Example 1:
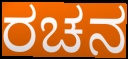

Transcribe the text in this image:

ರಚನ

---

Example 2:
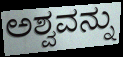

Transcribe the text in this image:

ಅಶ್ವವನ್ನು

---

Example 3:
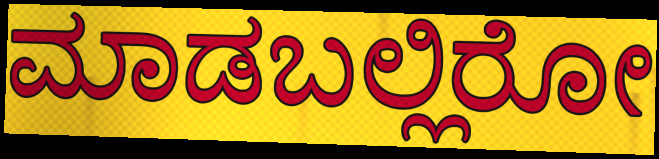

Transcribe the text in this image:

ಮಾಡಬಲ್ಲಿರೋ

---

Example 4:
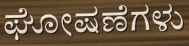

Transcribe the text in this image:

ಘೋಷಣೆಗಳು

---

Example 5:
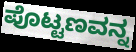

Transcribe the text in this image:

ಪೊಟ್ಟಣವನ್ನ